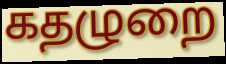
கதழுறை